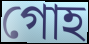
গোহ